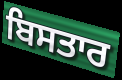
ਬਿਸਤਾਰ